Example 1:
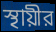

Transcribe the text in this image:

স্থায়ীর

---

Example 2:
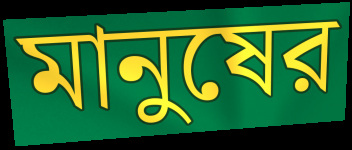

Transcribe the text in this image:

মানুষের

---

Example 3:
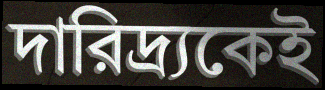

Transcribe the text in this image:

দারিদ্র্যকেই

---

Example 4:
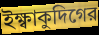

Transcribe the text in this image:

ইক্ষ্বাকুদিগের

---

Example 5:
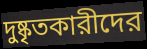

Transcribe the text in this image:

দুষ্কৃতকারীদের